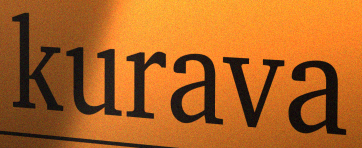
kurava